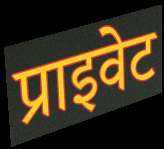
प्राइवेट